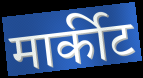
मार्कीट